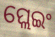
ପ୍ଲେଇଂ